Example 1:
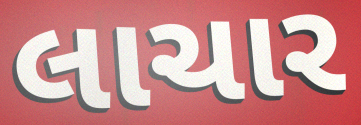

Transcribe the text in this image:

લાચાર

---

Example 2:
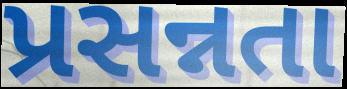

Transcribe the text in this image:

પ્રસન્નતા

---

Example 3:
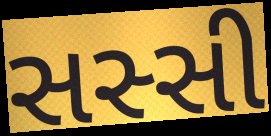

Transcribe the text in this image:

સસ્સી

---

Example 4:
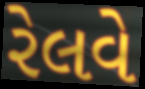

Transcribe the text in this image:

રેલવે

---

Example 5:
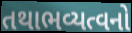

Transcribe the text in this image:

તથાભવ્યત્વનો